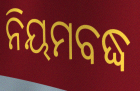
ନିୟମବଦ୍ଧ